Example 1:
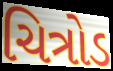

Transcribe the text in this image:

ચિત્રોડ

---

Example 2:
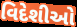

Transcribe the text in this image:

વિદેશીઓ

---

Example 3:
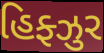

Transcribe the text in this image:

હિફ્ઝુર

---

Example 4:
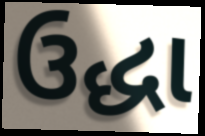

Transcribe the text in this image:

ઉદ્ધા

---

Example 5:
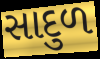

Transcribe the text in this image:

સાદુળ